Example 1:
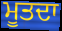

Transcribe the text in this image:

ਮੂਤਦਾ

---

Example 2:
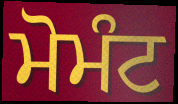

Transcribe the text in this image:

ਮੋਮੰਟ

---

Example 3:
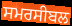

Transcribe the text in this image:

ਸਮਰਸੀਬਲ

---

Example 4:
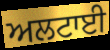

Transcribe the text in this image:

ਅਲਟਾਈ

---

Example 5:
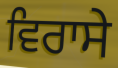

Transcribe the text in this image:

ਵਿਰਾਸੇ